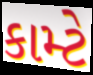
કામ્ટે